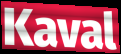
Kaval